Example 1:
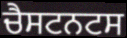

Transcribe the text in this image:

ਚੈਸਟਨਟਸ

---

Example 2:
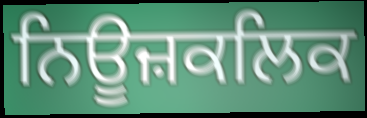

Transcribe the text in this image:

ਨਿਊਜ਼ਕਲਿਕ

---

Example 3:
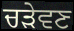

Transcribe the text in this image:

ਚੜੇਵਣ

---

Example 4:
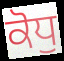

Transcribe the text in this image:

ਕੋਧੁ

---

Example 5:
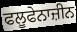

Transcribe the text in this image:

ਫਲੂਫੇਨਾਜ਼ੀਨ